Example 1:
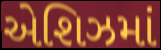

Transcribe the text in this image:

એશિઝમાં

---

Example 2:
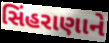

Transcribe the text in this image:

સિંહરાણાને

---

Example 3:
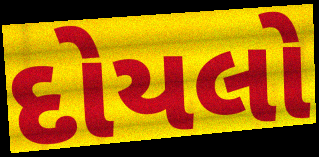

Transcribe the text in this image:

દોયલો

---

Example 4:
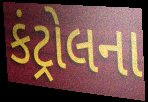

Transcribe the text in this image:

કંટ્રોલના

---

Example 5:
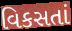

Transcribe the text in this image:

વિકસતાં